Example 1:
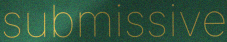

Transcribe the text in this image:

submissive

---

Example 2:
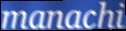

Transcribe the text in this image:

manachi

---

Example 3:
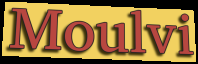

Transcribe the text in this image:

Moulvi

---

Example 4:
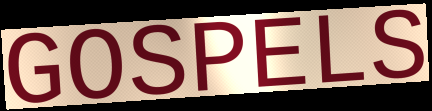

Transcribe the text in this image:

GOSPELS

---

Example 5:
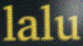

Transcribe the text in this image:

lalu